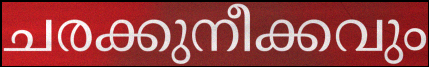
ചരക്കുനീക്കവും